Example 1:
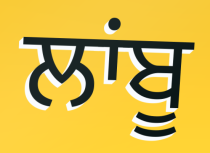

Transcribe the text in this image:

ਲਾਂਬੂ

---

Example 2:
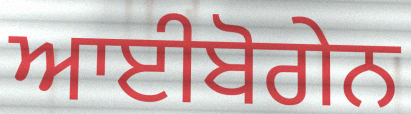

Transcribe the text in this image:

ਆਈਬੋਗੇਨ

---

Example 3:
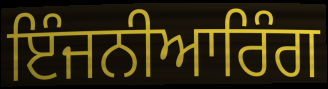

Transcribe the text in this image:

ਇੰਜਨੀਆਰਿੰਗ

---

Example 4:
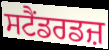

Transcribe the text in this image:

ਸਟੈਂਡਰਡਜ਼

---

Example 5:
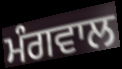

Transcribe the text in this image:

ਮੰਗਵਾਲ